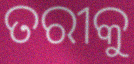
ତରୀକୁ